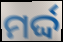
ମର୍ଦ୍ଦ